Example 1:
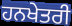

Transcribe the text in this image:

ਹਨਖੇਤਰੀ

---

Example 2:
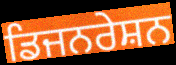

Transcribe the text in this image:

ਡਿਜਨਰੇਸ਼ਨ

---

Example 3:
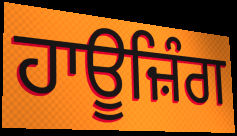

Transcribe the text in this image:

ਹਾਊਜ਼ਿੰਗ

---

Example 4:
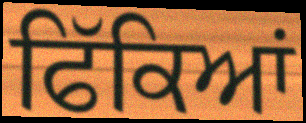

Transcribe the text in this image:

ਫਿੱਕਿਆਂ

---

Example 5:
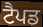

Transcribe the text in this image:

ਟੈਪਡ